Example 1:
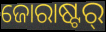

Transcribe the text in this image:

ଜୋରାଷ୍ଟର୍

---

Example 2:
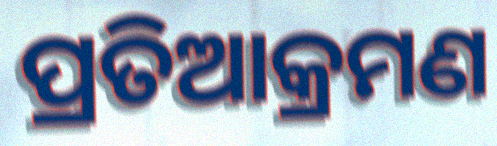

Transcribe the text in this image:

ପ୍ରତିଆକ୍ରମଣ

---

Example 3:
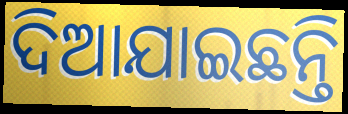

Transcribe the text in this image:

ଦିଆଯାଇଛନ୍ତି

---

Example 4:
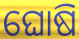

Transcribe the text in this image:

ଘୋଷି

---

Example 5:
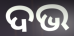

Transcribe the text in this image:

ଦଭ